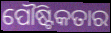
ପୌଷ୍ଟିକତାର